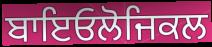
ਬਾਇਓਲੋਜਿਕਲ